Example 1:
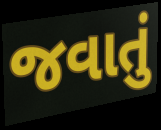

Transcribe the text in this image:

જવાતું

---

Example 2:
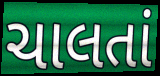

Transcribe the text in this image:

ચાલતાં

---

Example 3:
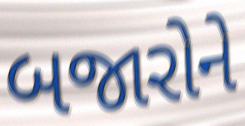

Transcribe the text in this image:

બજારોને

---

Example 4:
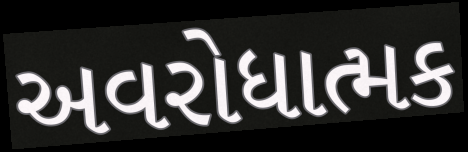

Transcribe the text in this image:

અવરોધાત્મક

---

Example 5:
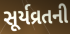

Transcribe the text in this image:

સૂર્યવ્રતની